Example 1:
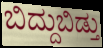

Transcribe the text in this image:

ಬಿದ್ದುಬಿಡ್ತು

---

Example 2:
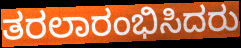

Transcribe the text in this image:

ತರಲಾರಂಭಿಸಿದರು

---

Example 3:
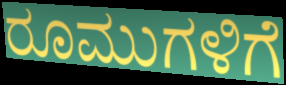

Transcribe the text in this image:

ರೂಮುಗಳಿಗೆ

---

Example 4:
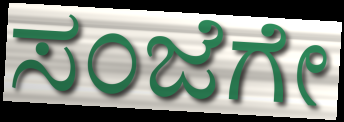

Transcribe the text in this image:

ಸಂಜೆಗೇ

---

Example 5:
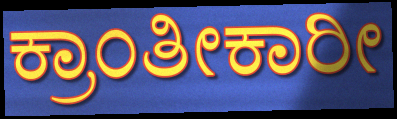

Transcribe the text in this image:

ಕ್ರಾಂತೀಕಾರೀ